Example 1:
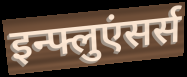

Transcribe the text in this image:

इन्फ्लुएंसर्स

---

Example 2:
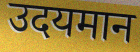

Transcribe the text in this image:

उदयमान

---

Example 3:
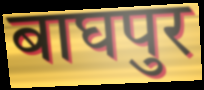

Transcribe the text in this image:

बाघपुर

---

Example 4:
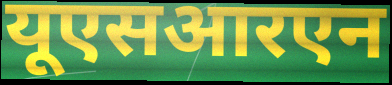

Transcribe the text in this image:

यूएसआरएन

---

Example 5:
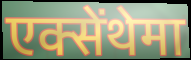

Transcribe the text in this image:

एक्सेंथेमा